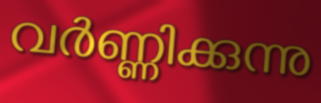
വർണ്ണിക്കുന്നു